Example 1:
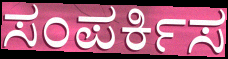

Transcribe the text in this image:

ಸಂಪರ್ಕಿಸ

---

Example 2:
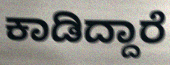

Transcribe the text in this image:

ಕಾಡಿದ್ದಾರೆ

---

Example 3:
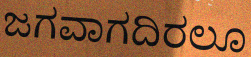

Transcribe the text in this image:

ಜಗವಾಗದಿರಲೂ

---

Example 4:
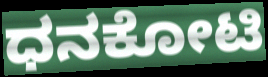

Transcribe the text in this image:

ಧನಕೋಟಿ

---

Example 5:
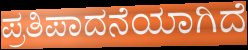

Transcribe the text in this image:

ಪ್ರತಿಪಾದನೆಯಾಗಿದೆ